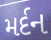
મર્દન